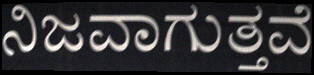
ನಿಜವಾಗುತ್ತವೆ